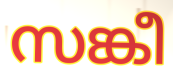
സങ്കീ